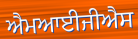
ਐਮਆਈਜੀਐਸ